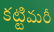
కట్టిమరీ